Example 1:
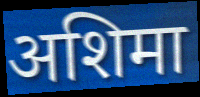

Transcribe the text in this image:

अशिमा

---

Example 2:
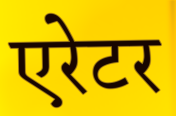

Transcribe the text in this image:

एरेटर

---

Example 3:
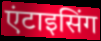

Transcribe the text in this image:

एंटाइसिंग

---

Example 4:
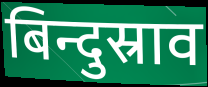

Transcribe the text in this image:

बिन्दुस्राव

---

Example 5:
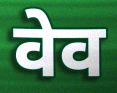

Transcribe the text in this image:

वेव